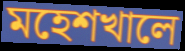
মহেশখালে